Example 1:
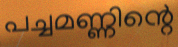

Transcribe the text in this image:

പച്ചമണ്ണിന്റെ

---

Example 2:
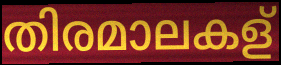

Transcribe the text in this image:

തിരമാലകള്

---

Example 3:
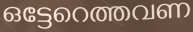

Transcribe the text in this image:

ഒട്ടേറെത്തവണ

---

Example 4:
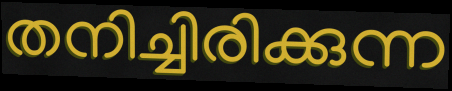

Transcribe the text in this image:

തനിച്ചിരിക്കുന്ന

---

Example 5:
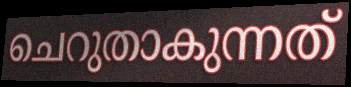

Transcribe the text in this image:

ചെറുതാകുന്നത്